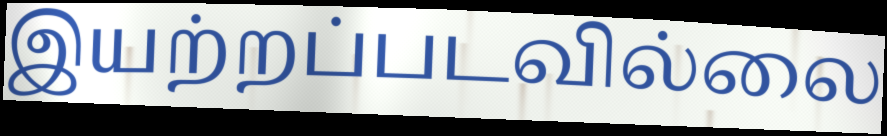
இயற்றப்படவில்லை